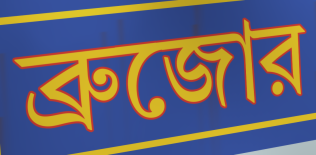
ব্রুজোর